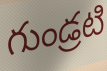
గుండ్రటి